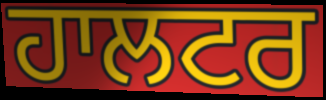
ਹਾਲਟਰ